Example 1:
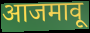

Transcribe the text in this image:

आजमावू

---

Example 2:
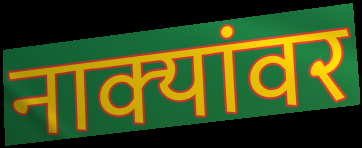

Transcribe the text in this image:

नाक्यांवर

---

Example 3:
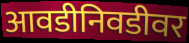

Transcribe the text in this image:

आवडीनिवडीवर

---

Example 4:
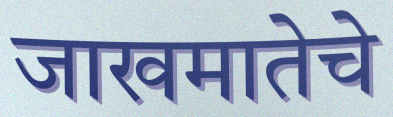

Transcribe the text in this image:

जाखमातेचे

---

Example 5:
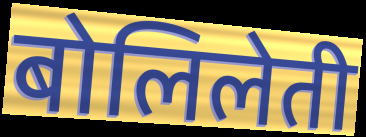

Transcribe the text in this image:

बोलिलेती